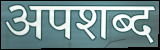
अपशब्‍द